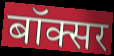
बॉक्सर